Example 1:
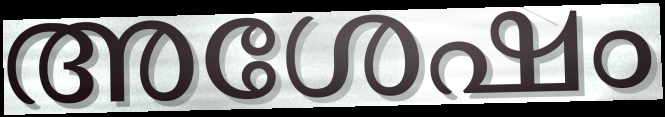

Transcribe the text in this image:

അശേഷം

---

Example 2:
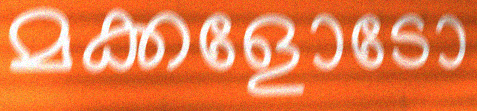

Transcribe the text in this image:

മക്കളോടോ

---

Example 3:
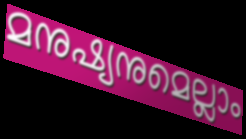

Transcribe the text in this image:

മനുഷ്യനുമെല്ലാം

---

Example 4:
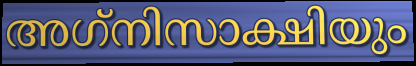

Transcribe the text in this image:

അഗ്‌നിസാക്ഷിയും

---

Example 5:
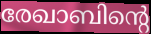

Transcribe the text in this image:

രേഖാബിന്റെ